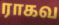
ராகவ